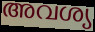
അവശ്യ